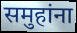
समुहांना